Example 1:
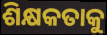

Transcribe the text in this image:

ଶିକ୍ଷକତାକୁ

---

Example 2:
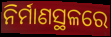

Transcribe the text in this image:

ନିର୍ମାଣସ୍ଥଳରେ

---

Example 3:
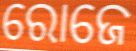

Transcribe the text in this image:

ରୋଜେ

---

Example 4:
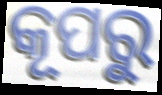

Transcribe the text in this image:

କୂପରୁ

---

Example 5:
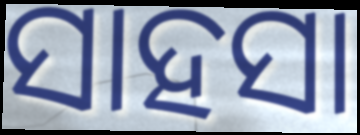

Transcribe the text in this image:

ସାହସା